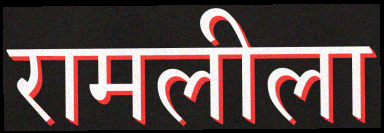
रामलीला